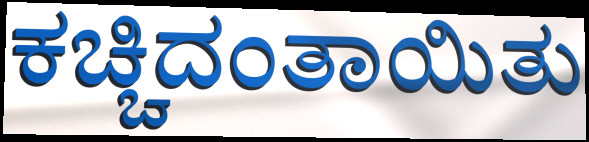
ಕಚ್ಚಿದಂತಾಯಿತು